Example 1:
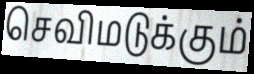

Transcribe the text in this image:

செவிமடுக்கும்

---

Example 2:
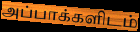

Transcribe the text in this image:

அப்பாக்களிடம்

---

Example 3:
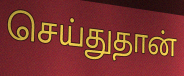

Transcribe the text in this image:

செய்துதான்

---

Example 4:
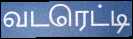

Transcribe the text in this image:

வடரெட்டி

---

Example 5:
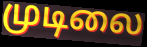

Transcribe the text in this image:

முடிலை